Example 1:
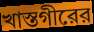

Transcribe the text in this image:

খাস্তগীরের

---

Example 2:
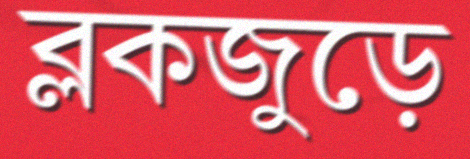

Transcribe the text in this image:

ব্লকজুড়ে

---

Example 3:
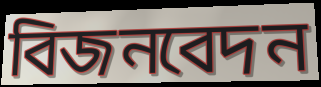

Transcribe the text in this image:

বিজনবেদন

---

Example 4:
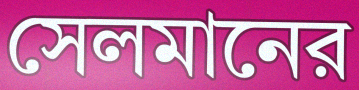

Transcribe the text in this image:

সেলমানের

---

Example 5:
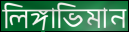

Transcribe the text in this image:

লিঙ্গাভিমান